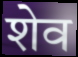
शेव